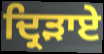
ਦ੍ਰਿੜਾਏ